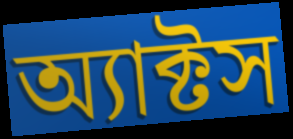
অ্যাক্টস